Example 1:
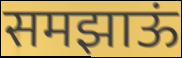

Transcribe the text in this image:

समझाऊं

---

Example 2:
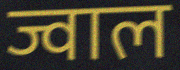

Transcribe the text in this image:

ज्वाल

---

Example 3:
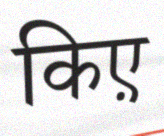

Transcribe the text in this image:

किए़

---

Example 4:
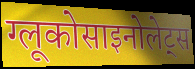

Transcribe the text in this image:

ग्लूकोसाइनोलेट्स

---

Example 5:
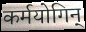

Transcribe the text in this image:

कर्मयोगिन्